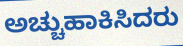
ಅಚ್ಚುಹಾಕಿಸಿದರು